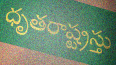
ధృతరాష్ట్రస్తు